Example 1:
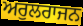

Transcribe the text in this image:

ਅਰੁਲਰਾਜਨ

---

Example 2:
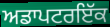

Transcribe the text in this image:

ਅਡਾਪਟਰਇੱਕ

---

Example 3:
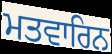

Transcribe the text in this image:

ਮਤਵਾਰਿਨ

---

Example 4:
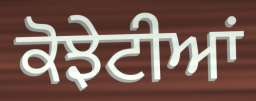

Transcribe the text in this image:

ਕੋਝੇਟੀਆਂ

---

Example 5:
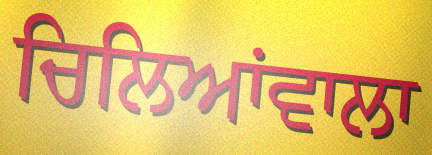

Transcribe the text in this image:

ਚਿਲਿਆਂਵਾਲਾ